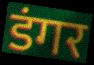
डंगर